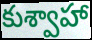
కుశ్వాహా